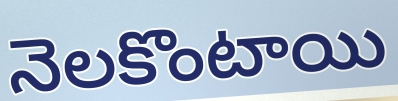
నెలకొంటాయి